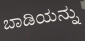
ಬಾಡಿಯನ್ನು